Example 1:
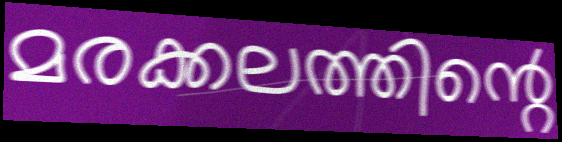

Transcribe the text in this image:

മരക്കലത്തിന്റെ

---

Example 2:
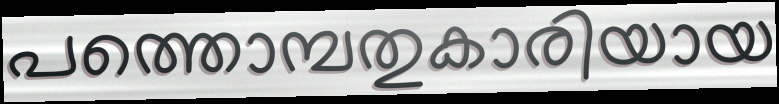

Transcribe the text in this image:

പത്തൊമ്പതുകാരിയായ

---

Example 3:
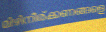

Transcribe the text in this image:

മിഴിനീര്ക്കണങ്ങളെ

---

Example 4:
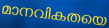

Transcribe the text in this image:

മാനവികതയെ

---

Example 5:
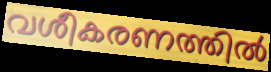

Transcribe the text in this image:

വശീകരണത്തിൽ